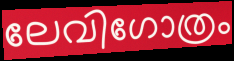
ലേവിഗോത്രം